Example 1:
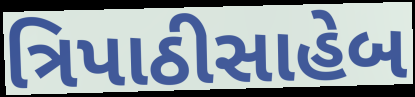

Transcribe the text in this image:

ત્રિપાઠીસાહેબ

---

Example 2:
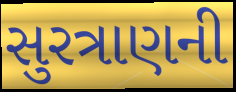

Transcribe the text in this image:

સુરત્રાણની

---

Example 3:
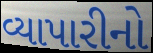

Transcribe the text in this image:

વ્યાપારીનો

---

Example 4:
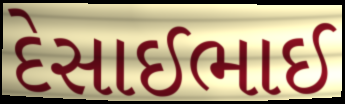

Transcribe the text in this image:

દેસાઈભાઈ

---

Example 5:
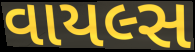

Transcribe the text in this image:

વાયલ્સ